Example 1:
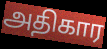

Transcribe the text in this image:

அதிகார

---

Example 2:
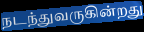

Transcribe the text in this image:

நடந்துவருகின்றது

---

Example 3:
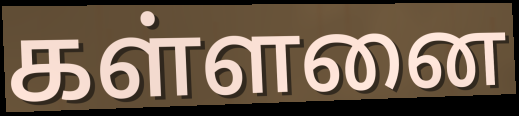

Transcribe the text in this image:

கள்ளனை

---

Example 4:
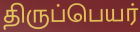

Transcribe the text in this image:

திருப்பெயர்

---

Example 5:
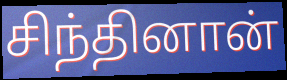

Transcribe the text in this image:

சிந்தினான்